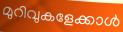
മുറിവുകളേക്കാൾ